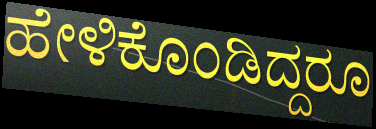
ಹೇಳಿಕೊಂಡಿದ್ದರೂ